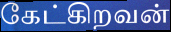
கேட்கிறவன்